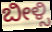
ಬೀಳ್ಸಿ